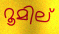
റൂമില്